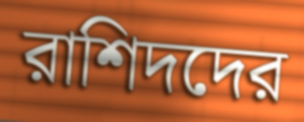
রাশিদদের